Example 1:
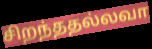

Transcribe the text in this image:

சிறந்ததல்லவா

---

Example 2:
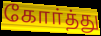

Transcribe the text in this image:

கோர்த்து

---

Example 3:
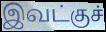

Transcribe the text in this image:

இவட்குச்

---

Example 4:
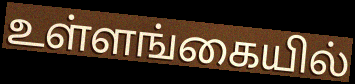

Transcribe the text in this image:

உள்ளங்கையில்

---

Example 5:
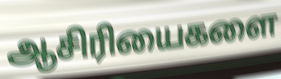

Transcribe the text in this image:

ஆசிரியைகளை